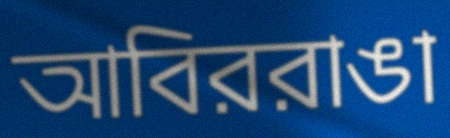
আবিররাঙা